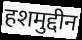
हशमुद्दीन